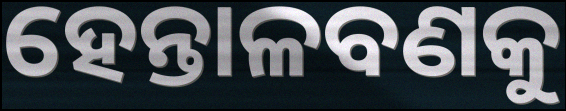
ହେନ୍ତାଳବଣକୁ